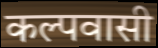
कल्पवासी